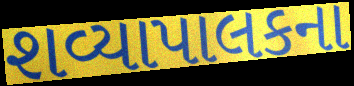
શવ્યાપાલકના